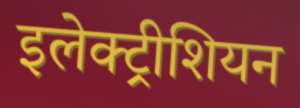
इलेक्ट्रीशियन